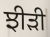
ਝੀੜੀ